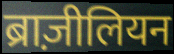
ब्राज़ीलियन